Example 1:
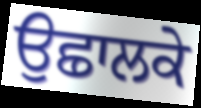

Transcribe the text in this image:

ਉਛਾਲਕੇ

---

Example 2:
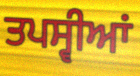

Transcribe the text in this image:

ਤਪਸ੍ਵੀਆਂ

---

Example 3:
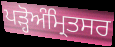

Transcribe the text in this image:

ਪੜ੍ਹੋਅੰਮ੍ਰਿਤਸਰ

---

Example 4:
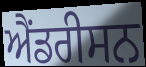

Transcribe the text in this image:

ਐਂਡਰੀਸਨ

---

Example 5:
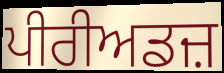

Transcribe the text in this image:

ਪੀਰੀਅਡਜ਼